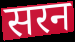
सरन